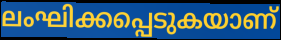
ലംഘിക്കപ്പെടുകയാണ്